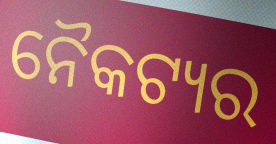
ନୈକଟ୍ୟର